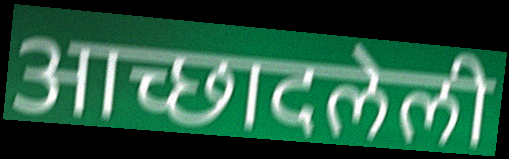
आच्छादलेली